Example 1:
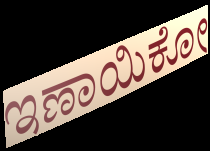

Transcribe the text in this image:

ಇಣಾಯಿಕೋ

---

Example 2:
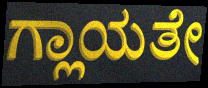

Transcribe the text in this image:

ಗ್ಲಾಯತೇ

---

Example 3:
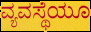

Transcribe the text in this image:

ವ್ಯವಸ್ಥೆಯೂ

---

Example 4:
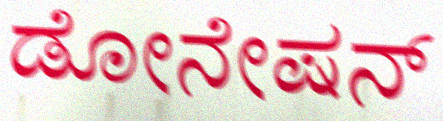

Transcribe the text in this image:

ಡೋನೇಷನ್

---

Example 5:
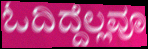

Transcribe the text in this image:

ಓದಿದ್ದೆಲ್ಲವೂ